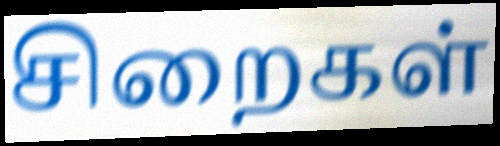
சிறைகள்